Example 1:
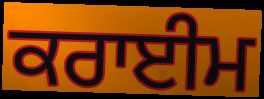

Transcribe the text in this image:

ਕਰਾਈਮ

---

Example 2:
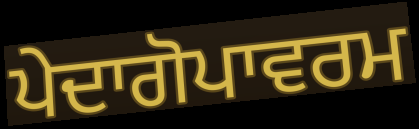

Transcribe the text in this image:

ਪੇਦਾਗੋਪਾਵਰਮ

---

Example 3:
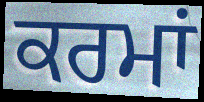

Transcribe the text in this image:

ਕਰਮਾਂ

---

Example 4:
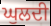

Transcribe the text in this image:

ਘੁਲਦੀ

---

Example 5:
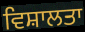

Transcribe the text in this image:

ਵਿਸ਼ਾਲਤਾ